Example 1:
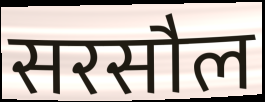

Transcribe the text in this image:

सरसौल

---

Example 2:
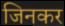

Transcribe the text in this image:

जिनकर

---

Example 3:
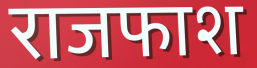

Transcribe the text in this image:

राजफाश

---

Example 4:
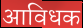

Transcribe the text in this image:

आविधक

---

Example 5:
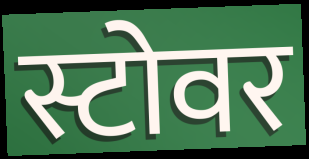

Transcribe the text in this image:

स्टोवर